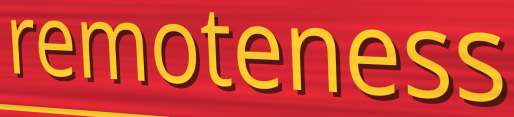
remoteness